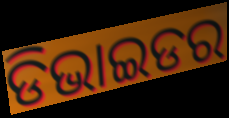
ଡିଭାଇଡର